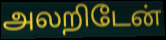
அலறிடேன்